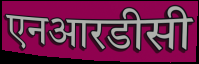
एनआरडीसी